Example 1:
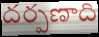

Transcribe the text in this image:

దర్పణాది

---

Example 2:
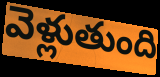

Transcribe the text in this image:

వెళ్లుతుంది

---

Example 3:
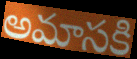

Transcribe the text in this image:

అమాసకి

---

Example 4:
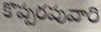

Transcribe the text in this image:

కొప్పరపువారి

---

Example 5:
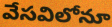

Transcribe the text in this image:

వేసవిలోనూ